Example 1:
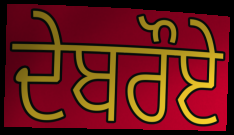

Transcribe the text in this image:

ਦੇਬਰੌਏ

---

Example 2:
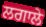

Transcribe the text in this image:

ਲਗਾਲੇ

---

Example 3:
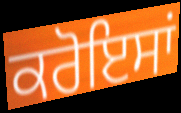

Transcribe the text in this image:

ਕਰੋਇਸਾਂ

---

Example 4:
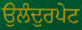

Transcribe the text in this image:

ਉਲੰਦੁਰਪੇਟ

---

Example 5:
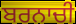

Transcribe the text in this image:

ਬਰਨਾਚੀ